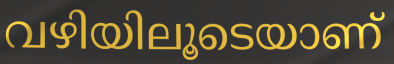
വഴിയിലൂടെയാണ്